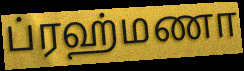
ப்ரஹ்மணா